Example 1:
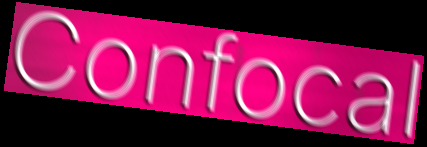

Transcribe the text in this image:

Confocal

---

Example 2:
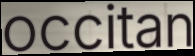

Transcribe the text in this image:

occitan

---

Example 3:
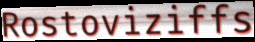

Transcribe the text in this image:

Rostoviziffs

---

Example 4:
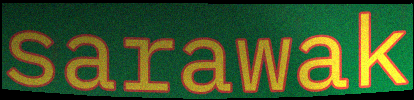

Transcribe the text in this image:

sarawak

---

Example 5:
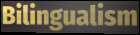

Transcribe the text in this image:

Bilingualism